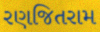
રણજિતરામ